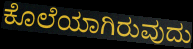
ಕೊಲೆಯಾಗಿರುವುದು